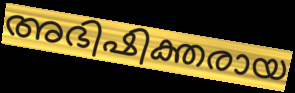
അഭിഷിക്തരായ